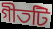
গীতটি